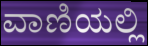
ವಾಣಿಯಲ್ಲಿ